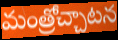
మంత్రోచ్చాటన